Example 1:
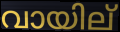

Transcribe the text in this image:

വായില്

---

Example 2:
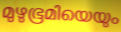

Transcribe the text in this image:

മുഴുഭൂമിയെയും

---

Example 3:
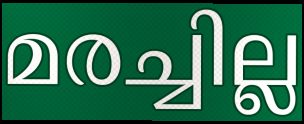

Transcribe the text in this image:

മരച്ചില്ല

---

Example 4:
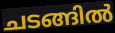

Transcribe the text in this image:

ചടങ്ങിൽ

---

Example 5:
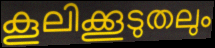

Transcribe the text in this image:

കൂലിക്കൂടുതലും